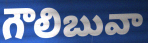
గౌలిబువా